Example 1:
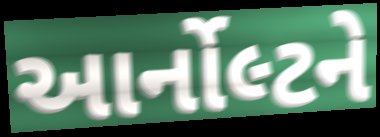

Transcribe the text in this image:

આર્નોલ્ટને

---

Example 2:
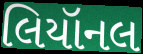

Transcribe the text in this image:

લિયૉનલ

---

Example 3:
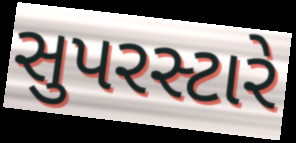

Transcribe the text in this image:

સુપરસ્ટારે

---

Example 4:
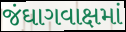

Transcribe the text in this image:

જંઘાગવાક્ષમાં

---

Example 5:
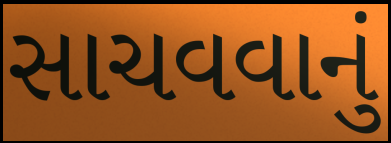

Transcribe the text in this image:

સાચવવાનું